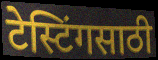
टेस्टिंगसाठी